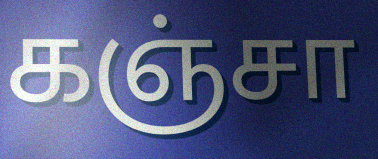
கஞ்சா